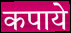
कपाये